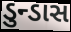
ડુન્ડાસ